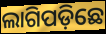
ଲାଗିପଡ଼ିଛେ